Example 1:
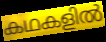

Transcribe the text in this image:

കഥകളിൽ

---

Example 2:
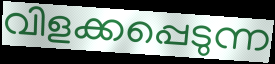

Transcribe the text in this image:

വിളക്കപ്പെടുന്ന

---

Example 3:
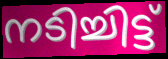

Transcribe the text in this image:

നടിച്ചിട്ട്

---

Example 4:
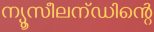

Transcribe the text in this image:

ന്യൂസീലന്ഡിന്റെ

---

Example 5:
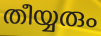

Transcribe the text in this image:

തീയ്യരും